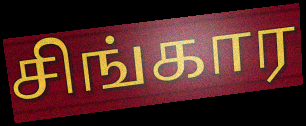
சிங்கார